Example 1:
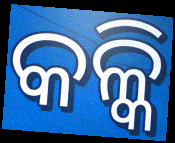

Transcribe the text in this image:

କଳ୍କି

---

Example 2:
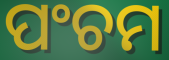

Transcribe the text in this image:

ପଂଚମ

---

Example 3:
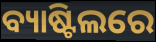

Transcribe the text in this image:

ବ୍ୟାଷ୍ଟିଲରେ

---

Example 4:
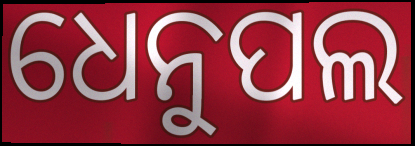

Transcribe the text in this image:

ଧେନୁପଲ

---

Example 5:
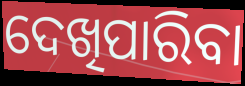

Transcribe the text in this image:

ଦେଖିପାରିବା